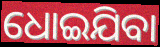
ଧୋଇଯିବା